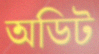
অডিট